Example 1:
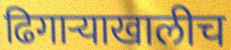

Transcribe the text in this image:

ढिगाऱ्याखालीच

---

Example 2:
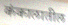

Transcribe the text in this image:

कंकालातील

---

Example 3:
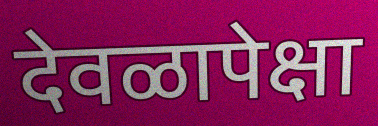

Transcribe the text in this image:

देवळापेक्षा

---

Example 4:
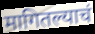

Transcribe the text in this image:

मागितल्याचं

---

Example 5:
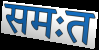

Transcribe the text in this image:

समःत